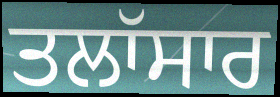
ਤਲਾੱਸਾਰ